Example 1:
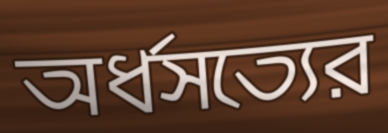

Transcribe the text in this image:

অর্ধসত্যের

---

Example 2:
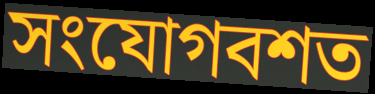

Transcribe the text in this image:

সংযোগবশত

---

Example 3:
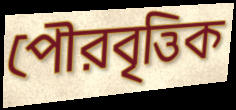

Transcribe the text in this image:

পৌরবৃত্তিক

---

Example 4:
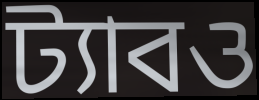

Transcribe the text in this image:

ট্যাবও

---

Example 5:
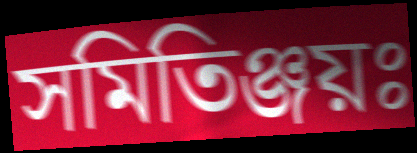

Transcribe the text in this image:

সমিতিঞ্জয়ঃ